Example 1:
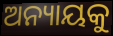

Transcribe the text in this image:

ଅନ୍ୟାୟକୁ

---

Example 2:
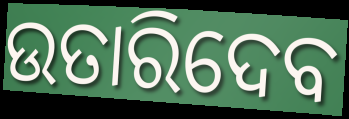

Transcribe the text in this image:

ଉତାରିଦେବ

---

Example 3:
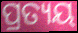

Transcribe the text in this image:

ପ୍ରତ୍ୟୟ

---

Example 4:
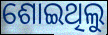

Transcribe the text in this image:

ଶୋଇଥିଲୁ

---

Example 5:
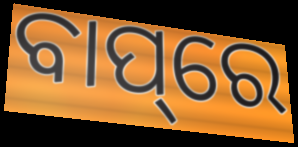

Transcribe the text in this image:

ବାପ୍‌ରେ